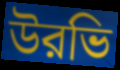
উরভি